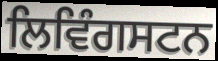
ਲਿਵਿੰਗਸਟਨ